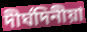
দীৰ্ঘদিনীয়া